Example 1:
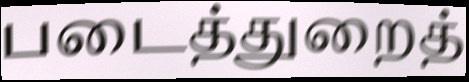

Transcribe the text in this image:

படைத்துறைத்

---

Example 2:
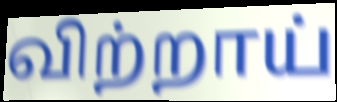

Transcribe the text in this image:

விற்றாய்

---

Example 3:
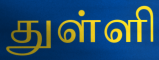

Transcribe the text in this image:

துள்ளி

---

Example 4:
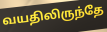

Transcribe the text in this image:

வயதிலிருந்தே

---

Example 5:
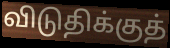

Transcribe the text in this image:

விடுதிக்குத்